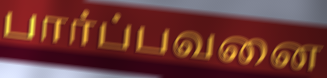
பார்ப்பவனை